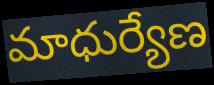
మాధుర్యేణ